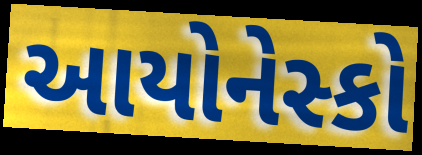
આયોનેસ્કો